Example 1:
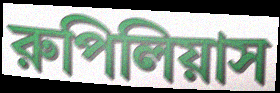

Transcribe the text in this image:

রুপিলিয়াস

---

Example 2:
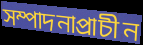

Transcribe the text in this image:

সম্পাদনাপ্রাচীন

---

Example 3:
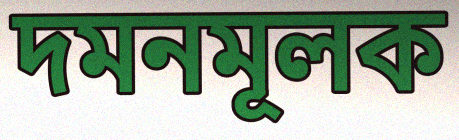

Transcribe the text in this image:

দমনমূলক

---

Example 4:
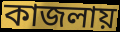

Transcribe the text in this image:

কাজলায়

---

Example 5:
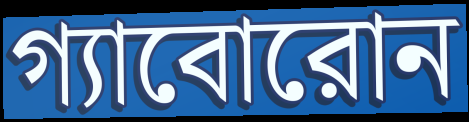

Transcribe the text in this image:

গ্যাবোরোন